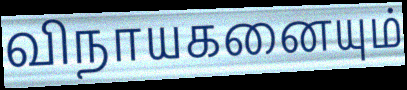
விநாயகனையும்